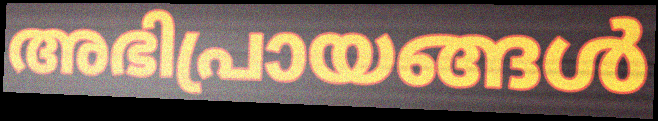
അഭിപ്രായങ്ങൾ